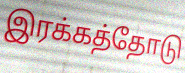
இரக்கத்தோடு